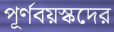
পূর্ণবয়স্কদের